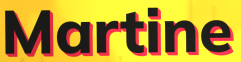
Martine